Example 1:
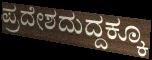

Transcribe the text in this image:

ಪ್ರದೇಶದುದ್ದಕ್ಕೂ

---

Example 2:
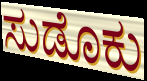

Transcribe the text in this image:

ಸುಡೊಕು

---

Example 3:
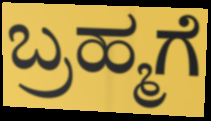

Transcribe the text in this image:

ಬ್ರಹ್ಮಗೆ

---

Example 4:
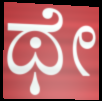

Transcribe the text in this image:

ಥೇ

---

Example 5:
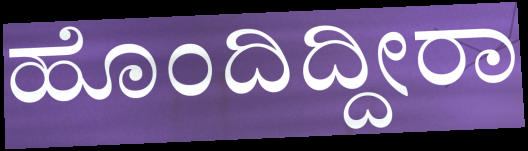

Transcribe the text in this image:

ಹೊಂದಿದ್ದೀರಾ